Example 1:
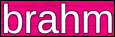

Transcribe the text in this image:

brahm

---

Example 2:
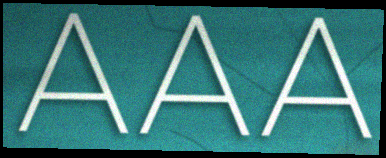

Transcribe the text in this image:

AAA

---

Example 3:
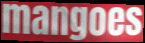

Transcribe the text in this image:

mangoes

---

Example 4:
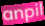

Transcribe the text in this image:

anpil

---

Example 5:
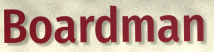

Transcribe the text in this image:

Boardman